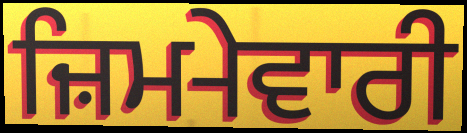
ਜ਼ਿਮ੍ਮੇਵਾਰੀ